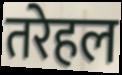
तरेहल